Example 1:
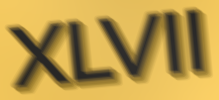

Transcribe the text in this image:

XLVII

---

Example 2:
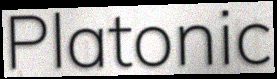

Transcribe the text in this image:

Platonic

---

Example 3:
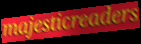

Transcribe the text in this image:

majesticreaders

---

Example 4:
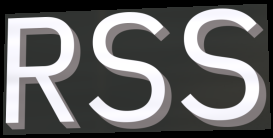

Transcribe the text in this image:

RSS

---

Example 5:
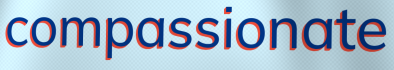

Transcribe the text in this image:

compassionate